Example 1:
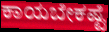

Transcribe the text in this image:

ಕಾಯಬೇಕಷ್ಟೆ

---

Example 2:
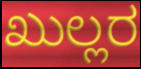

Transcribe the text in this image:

ಖುಲ್ಲರ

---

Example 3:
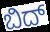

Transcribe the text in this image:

ಬಿದ್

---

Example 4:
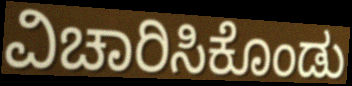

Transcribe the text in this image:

ವಿಚಾರಿಸಿಕೊಂಡು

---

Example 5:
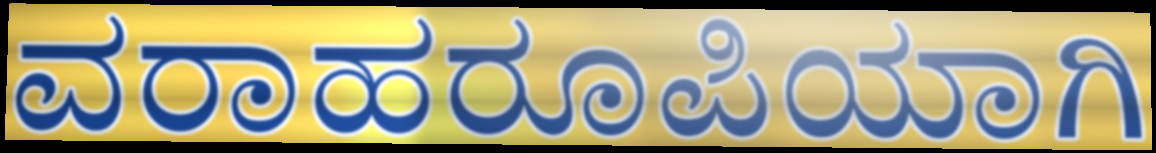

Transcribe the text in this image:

ವರಾಹರೂಪಿಯಾಗಿ